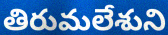
తిరుమలేశుని